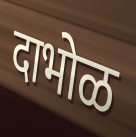
दाभोळ